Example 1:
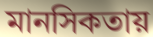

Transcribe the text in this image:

মানসিকতায়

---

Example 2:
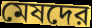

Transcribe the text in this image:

মেষদের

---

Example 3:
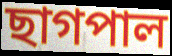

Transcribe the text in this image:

ছাগপাল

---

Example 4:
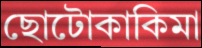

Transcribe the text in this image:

ছোটোকাকিমা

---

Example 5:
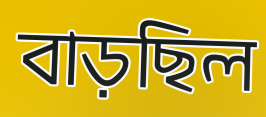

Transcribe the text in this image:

বাড়ছিল